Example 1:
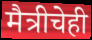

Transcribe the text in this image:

मैत्रीचेही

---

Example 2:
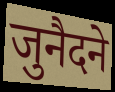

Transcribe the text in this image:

जुनैदने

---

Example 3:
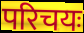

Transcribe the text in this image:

परिचयः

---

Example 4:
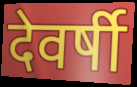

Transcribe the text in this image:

देवर्षी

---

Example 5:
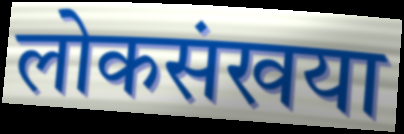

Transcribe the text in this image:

लोकसंखया